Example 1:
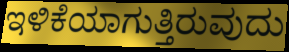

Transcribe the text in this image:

ಇಳಿಕೆಯಾಗುತ್ತಿರುವುದು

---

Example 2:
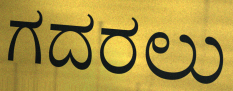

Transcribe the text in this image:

ಗದರಲು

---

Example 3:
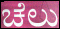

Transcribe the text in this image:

ಚೆಲು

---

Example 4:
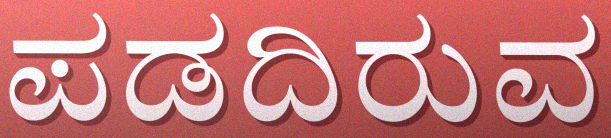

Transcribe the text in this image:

ಪಡದಿರುವ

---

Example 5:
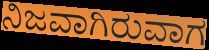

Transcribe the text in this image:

ನಿಜವಾಗಿರುವಾಗ